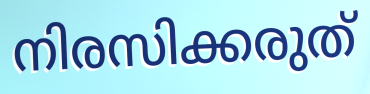
നിരസിക്കരുത്